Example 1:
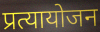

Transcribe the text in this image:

प्रत्यायोजन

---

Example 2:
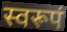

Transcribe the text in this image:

स्वरूपं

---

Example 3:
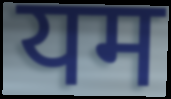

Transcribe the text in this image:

यम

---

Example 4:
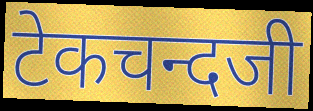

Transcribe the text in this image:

टेकचन्दजी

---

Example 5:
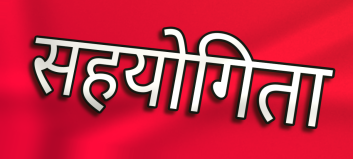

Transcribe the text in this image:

सहयोगिता